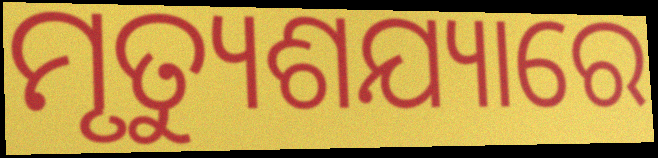
ମୃତ୍ୟୁଶଯ୍ୟାରେ